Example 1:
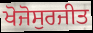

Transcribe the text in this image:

ਖੋਜੋਸੁਰਜੀਤ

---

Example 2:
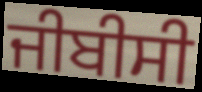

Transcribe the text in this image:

ਜੀਬੀਸੀ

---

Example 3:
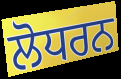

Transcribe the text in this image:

ਲੋਧਰਨ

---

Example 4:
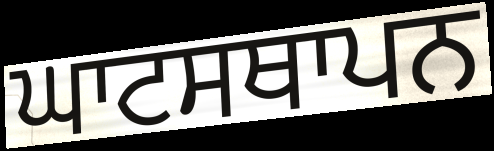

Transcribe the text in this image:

ਘਾਟਸਥਾਪਨ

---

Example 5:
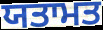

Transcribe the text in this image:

ਯਤਾਮਤ